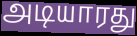
அடியாரது